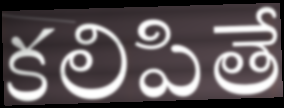
కలిపితే